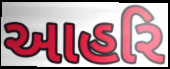
આહરિ